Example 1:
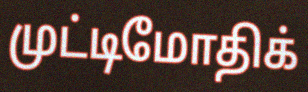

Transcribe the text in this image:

முட்டிமோதிக்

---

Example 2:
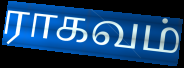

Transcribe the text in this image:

ராகவம்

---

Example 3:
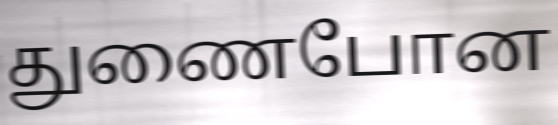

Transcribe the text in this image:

துணைபோன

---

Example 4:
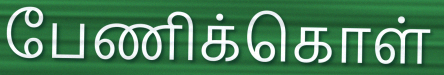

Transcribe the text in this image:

பேணிக்கொள்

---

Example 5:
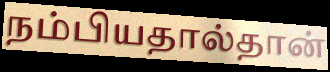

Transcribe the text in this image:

நம்பியதால்தான்